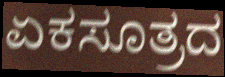
ಏಕಸೂತ್ರದ